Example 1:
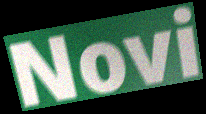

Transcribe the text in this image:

Novi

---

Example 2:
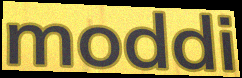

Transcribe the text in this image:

moddi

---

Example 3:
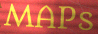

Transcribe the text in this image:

MAPs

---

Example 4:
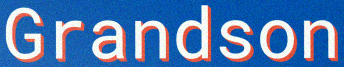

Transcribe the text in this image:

Grandson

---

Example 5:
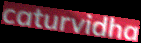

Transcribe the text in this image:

caturvidha